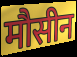
मौसीन